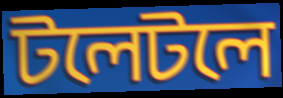
টলেটলে